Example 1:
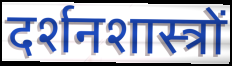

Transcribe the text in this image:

दर्शनशास्त्रों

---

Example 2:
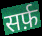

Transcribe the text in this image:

सर्फ़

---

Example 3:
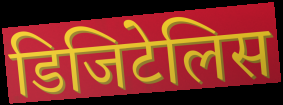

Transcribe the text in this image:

डिजिटेलिस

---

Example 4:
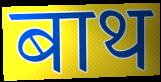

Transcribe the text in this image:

बाथ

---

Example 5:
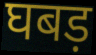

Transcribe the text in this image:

घबड़